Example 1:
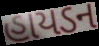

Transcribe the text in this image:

હાયડન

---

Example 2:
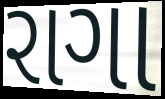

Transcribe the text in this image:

રાગા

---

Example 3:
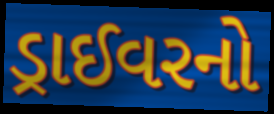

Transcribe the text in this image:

ડ્રાઈવરનો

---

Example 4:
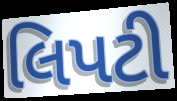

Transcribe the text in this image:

લિપટી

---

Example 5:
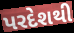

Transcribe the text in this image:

પરદેશથી